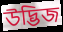
উদ্ভিজ